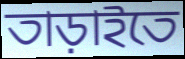
তাড়াইতে